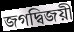
জগদ্বিজয়ী